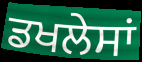
ਡਖਲੇਸਾਂ